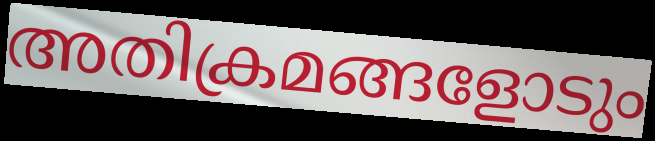
അതിക്രമങ്ങളോടും